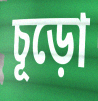
চূড়ো